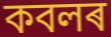
কবলৰ